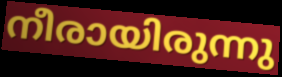
നീരായിരുന്നു